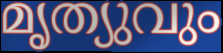
മൃത്യുവും